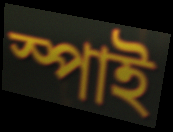
স্পাই